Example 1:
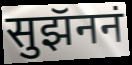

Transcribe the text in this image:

सुझॅननं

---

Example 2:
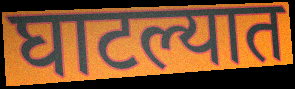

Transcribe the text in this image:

घाटल्यात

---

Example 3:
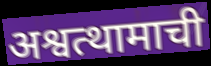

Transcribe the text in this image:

अश्वत्थामाची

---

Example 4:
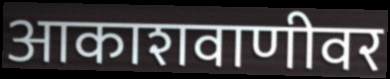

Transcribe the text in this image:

आकाशवाणीवर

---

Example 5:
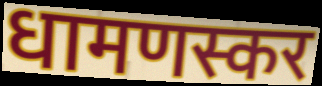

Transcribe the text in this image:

धामणस्कर